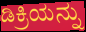
ಡಿಕ್ರಿಯನ್ನು